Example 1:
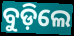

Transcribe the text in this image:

ବୁଡ଼ିଲେ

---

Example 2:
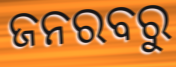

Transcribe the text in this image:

ଜନରବରୁ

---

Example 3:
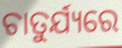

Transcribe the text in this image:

ଚାତୁର୍ଯ୍ୟରେ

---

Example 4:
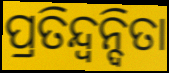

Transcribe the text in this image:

ପ୍ରତିନ୍ଦ୍ବନ୍ଦିତା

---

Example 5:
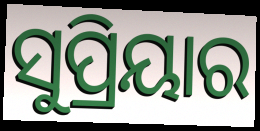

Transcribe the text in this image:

ସୁପ୍ରିୟାର